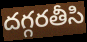
దగ్గరతీసి